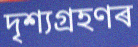
দৃশ্যগ্ৰহণৰ